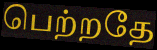
பெற்றதே